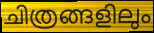
ചിത്രങ്ങളിലും